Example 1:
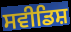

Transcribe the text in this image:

ਸਵੀਡਿਸ਼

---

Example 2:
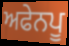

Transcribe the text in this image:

ਅਫੇਨਪੂ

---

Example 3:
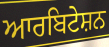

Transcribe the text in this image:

ਆਰਬਿਟੇਸ਼ਨ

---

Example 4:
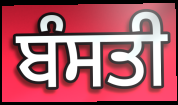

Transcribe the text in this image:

ਬੰਸਤੀ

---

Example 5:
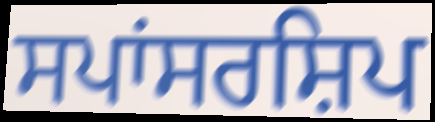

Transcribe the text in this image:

ਸਪਾਂਸਰਸ਼ਿਪ